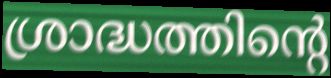
ശ്രാദ്ധത്തിന്റെ